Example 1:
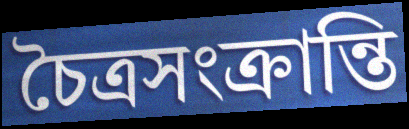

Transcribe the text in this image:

চৈত্রসংক্রান্তি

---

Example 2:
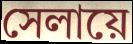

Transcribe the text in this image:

সেলায়ে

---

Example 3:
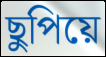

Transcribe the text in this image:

ছুপিয়ে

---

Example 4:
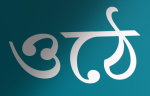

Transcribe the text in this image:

ওঠে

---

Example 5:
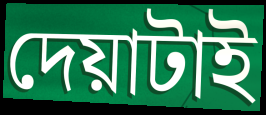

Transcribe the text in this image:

দেয়াটাই